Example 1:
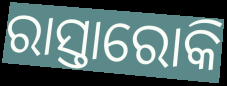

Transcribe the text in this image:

ରାସ୍ତାରୋକି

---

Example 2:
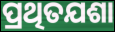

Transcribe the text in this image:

ପ୍ରଥିତଯଶା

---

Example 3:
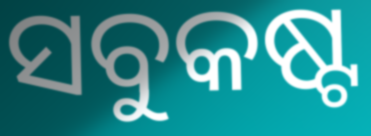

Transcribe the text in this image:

ସବୁକଷ୍ଟ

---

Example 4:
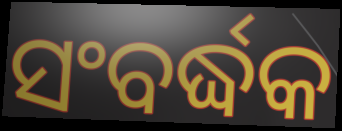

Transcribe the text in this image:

ସଂବର୍ଦ୍ଧକ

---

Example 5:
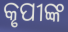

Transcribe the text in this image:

କୃପୀଙ୍କ